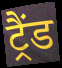
ट्रैंड